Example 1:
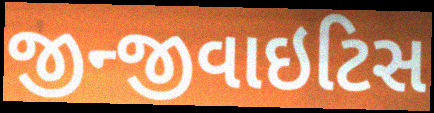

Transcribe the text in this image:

જીન્જીવાઇટિસ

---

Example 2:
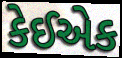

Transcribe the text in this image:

કેઈએક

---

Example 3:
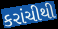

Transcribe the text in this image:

કરાંચીથી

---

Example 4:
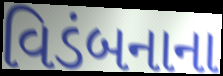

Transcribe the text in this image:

વિડંબનાના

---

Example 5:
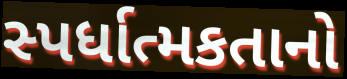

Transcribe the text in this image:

સ્પર્ધાત્મકતાનો